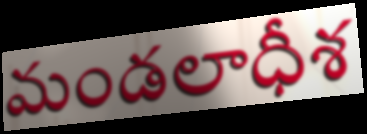
మండలాధీశ